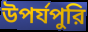
উপর্যপুরি